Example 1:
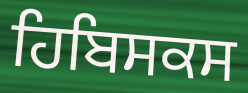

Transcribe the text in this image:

ਹਿਬਿਸਕਸ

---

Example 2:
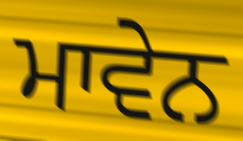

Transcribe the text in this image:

ਮਾਵੇਨ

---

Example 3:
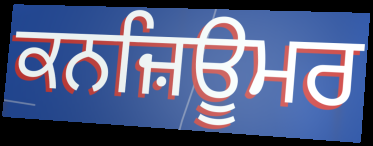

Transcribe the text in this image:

ਕਨਜ਼ਿਊਮਰ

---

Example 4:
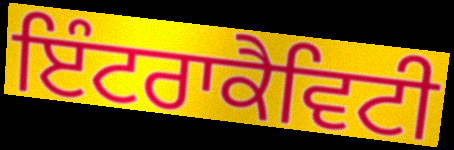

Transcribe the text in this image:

ਇੰਟਰਾਕੈਵਿਟੀ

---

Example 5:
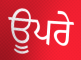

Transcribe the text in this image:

ਊਪਰੇ